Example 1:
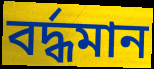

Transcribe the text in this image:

বর্দ্ধমান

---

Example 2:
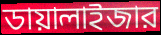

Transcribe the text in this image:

ডায়ালাইজার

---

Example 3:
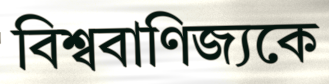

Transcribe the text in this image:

বিশ্ববাণিজ্যকে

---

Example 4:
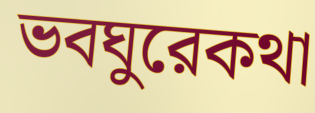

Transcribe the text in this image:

ভবঘুরেকথা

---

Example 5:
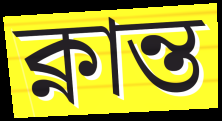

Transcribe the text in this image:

ক্নান্ত